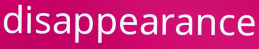
disappearance